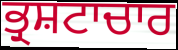
ਭ੍ਰਸ਼ਟਾਚਾਰ